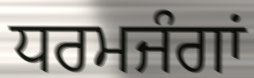
ਧਰਮਜੰਗਾਂ